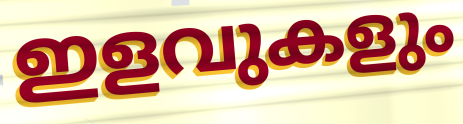
ഇളവുകളും